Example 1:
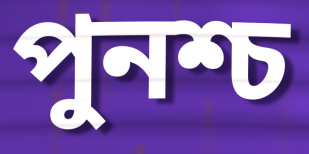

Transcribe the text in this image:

পুনশ্চ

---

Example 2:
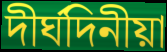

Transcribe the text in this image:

দীৰ্ঘদিনীয়া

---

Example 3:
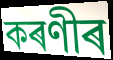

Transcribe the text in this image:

কৰণীৰ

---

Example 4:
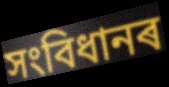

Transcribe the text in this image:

সংবিধানৰ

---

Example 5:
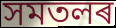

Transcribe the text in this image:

সমতলৰ